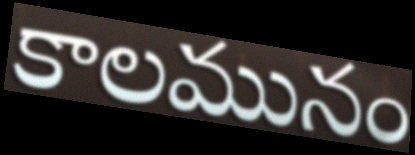
కాలమునం